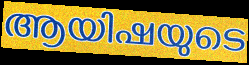
ആയിഷയുടെ